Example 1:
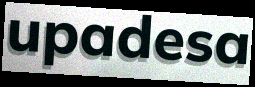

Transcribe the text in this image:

upadesa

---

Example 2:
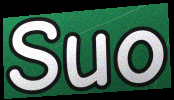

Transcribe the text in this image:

Suo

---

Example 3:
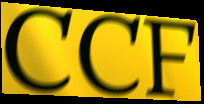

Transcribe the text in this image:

CCF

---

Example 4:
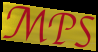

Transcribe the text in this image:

MPS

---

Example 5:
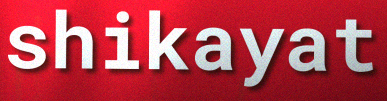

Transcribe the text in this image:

shikayat